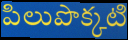
పిలుపొక్కటి